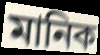
মানিক